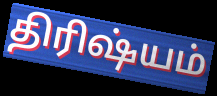
திரிஷ்யம்